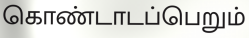
கொண்டாடப்பெறும்